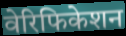
वेरिफिकेशन